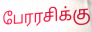
பேரரசிக்கு